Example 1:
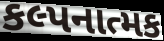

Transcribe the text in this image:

કલ્પનાત્મક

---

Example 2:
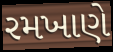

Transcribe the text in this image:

રમખાણે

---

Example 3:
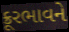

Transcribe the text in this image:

ક્રૂરભાવને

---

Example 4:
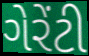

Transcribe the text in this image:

ગેરેંટી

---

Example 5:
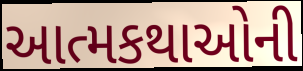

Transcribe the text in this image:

આત્મકથાઓની